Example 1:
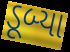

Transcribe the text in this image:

ડૂબ્યા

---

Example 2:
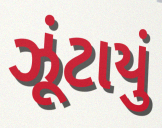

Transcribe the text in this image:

ઝૂંટાયું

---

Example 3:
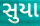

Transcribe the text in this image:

સુયા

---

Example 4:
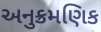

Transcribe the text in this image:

અનુક્રમણિક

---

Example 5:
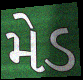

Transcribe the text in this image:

મેડ